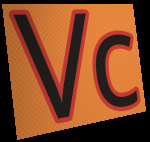
Vc